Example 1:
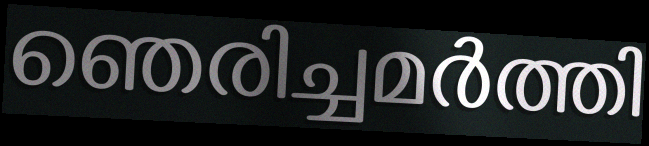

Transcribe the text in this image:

ഞെരിച്ചമർത്തി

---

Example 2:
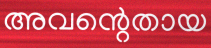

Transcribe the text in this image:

അവന്റെതായ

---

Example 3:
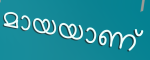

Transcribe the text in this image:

മായയാണ്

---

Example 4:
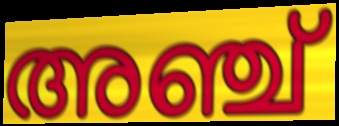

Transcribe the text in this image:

അഞ്ച്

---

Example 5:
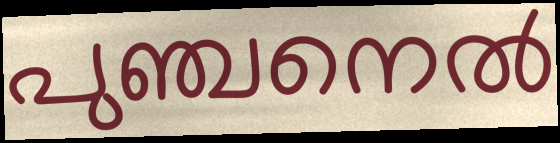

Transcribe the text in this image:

പുഞ്ചനെൽ